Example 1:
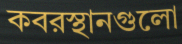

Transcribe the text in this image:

কবরস্থানগুলো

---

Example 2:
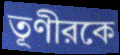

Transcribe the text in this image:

তূণীরকে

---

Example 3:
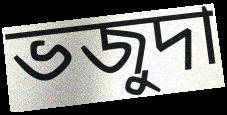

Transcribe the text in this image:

ভজুদা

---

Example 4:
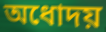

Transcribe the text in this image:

অধোদয়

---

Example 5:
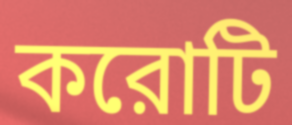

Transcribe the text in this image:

করোটি